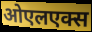
ओएलएक्स